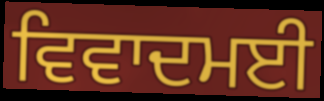
ਵਿਵਾਦਮਈ